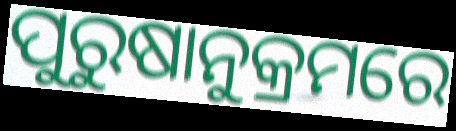
ପୁରୁଷାନୁକ୍ରମରେ